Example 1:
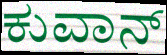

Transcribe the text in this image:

ಕುವಾನ್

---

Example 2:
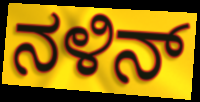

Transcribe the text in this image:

ನಳಿನ್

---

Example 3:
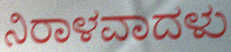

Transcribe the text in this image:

ನಿರಾಳವಾದಳು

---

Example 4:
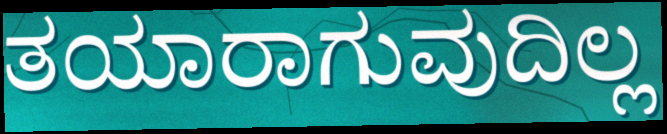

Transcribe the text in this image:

ತಯಾರಾಗುವುದಿಲ್ಲ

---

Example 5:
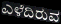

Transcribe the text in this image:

ಎಳೆದಿರುವ